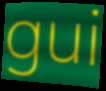
gui